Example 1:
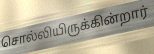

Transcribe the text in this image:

சொல்லியிருக்கின்றார்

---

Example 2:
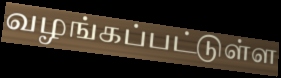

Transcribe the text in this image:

வழங்கப்பட்டுள்ள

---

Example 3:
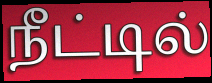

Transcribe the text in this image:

நீட்டில்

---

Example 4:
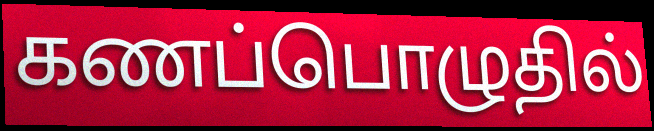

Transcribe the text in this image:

கணப்பொழுதில்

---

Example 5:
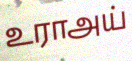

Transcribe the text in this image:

உராஅய்